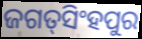
ଜଗତ୍‌ସିଂହପୁର